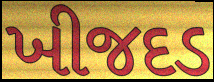
ખીજદડ